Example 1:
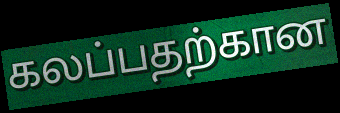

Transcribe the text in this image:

கலப்பதற்கான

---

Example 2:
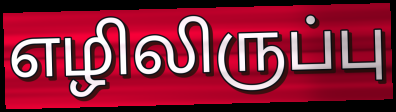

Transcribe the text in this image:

எழிலிருப்பு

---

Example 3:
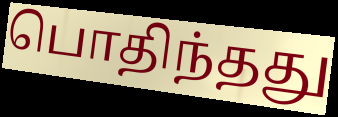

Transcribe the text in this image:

பொதிந்தது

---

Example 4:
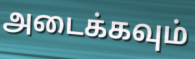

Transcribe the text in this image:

அடைக்கவும்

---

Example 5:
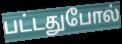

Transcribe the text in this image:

பட்டதுபோல்